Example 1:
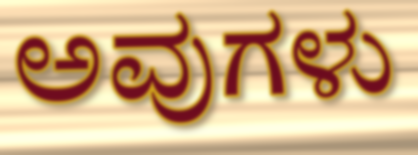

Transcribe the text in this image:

ಅವುಗಳು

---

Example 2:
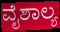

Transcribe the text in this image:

ವೈಶಾಲ್ಯ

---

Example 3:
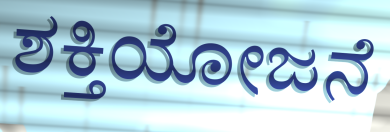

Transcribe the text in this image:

ಶಕ್ತಿಯೋಜನೆ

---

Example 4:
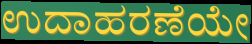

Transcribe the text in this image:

ಉದಾಹರಣೆಯೇ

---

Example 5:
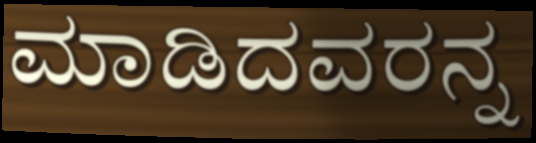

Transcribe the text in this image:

ಮಾಡಿದವರನ್ನ